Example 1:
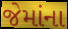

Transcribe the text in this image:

જેમાંના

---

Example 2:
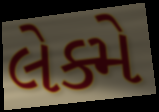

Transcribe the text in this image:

લેક્મે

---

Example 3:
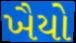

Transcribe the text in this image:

ખૈયો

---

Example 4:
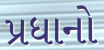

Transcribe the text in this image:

પ્રધાનો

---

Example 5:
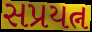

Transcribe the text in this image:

સપ્રયત્ન